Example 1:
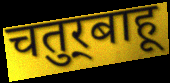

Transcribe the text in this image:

चतुर्बाहू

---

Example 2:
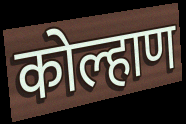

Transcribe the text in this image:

कोल्हाण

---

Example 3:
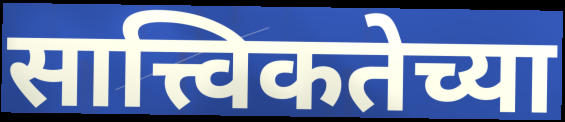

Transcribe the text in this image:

सात्त्विकतेच्या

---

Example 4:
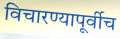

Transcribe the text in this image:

विचारण्यापूर्वीच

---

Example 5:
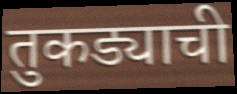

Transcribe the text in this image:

तुकड्याची